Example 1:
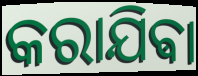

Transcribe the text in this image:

କରାଯିଵା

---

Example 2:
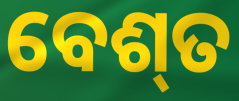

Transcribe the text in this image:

ବେଶ୍‍ତ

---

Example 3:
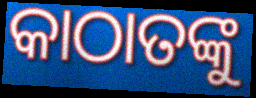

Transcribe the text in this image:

କାଠାତଙ୍କୁ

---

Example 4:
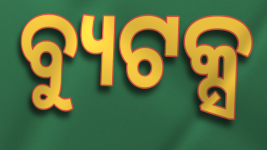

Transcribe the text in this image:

ବ୍ୟୁଟକ୍ସ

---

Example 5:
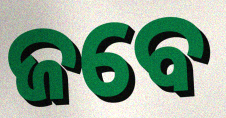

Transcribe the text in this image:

ଜବେ